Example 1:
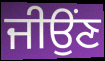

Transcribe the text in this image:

ਜੀਉਂਣ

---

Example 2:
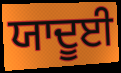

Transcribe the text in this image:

ਯਾਦੂਈ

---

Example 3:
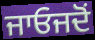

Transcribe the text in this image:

ਜਾਓਜਦੋਂ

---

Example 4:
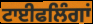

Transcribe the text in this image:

ਟਾਈਫਲਿੰਗਾਂ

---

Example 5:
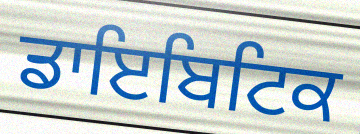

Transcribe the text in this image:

ਡਾਇਬਿਟਿਕ